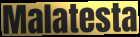
Malatesta